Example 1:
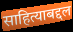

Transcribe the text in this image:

साहित्याबद्दल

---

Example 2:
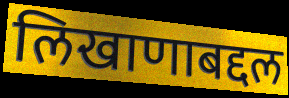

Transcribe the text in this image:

लिखाणाबद्दल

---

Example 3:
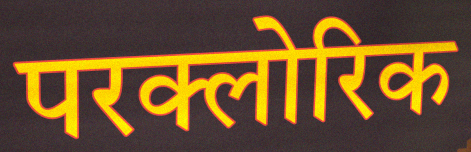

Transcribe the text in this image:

परक्लोरिक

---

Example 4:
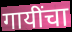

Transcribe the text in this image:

गायींचा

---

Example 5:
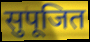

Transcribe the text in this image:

सुपूजित